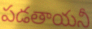
పడతాయనీ